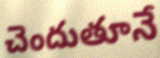
చెందుతూనే